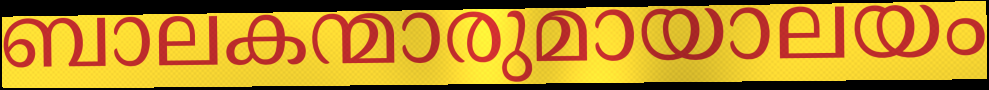
ബാലകന്മാരുമായാലയം